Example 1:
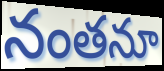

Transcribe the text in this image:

నంతనూ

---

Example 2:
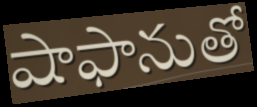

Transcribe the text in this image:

షాఫానుతో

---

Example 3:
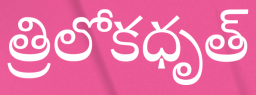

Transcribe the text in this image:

త్రిలోకధృత్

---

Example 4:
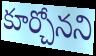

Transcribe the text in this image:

కూర్చోనని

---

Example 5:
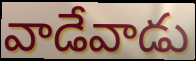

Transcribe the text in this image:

వాడేవాడు